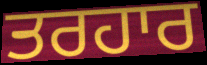
ਤਰਹਾਰ